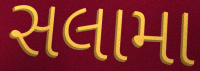
સલામા